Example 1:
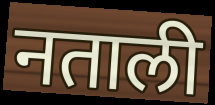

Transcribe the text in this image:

नताली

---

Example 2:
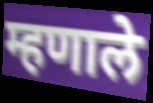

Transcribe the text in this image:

म्हणाले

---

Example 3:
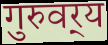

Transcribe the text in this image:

गुरुवर्य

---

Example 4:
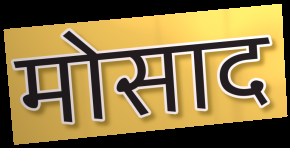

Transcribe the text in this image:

मोसाद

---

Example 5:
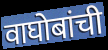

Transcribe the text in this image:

वाघोबांची